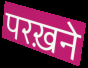
परख़ने